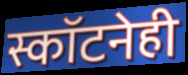
स्कॉटनेही